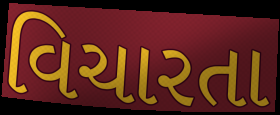
વિચારતા